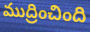
ముద్రించింది